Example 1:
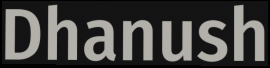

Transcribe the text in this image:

Dhanush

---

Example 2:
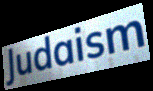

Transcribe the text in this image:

Judaism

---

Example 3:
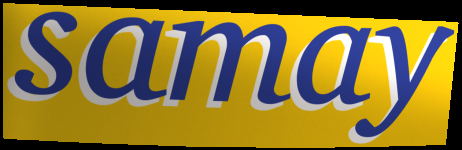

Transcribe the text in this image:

samay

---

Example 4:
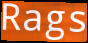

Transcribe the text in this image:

Rags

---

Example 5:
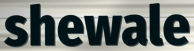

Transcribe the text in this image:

shewale